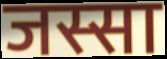
जस्सा